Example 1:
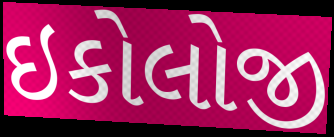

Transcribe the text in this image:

ઇકોલોજી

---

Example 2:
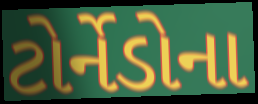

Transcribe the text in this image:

ટોર્નેડોના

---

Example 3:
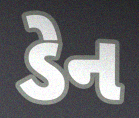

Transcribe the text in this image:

ડેન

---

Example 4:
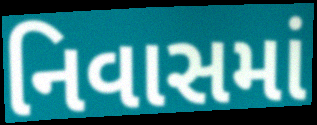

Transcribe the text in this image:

નિવાસમાં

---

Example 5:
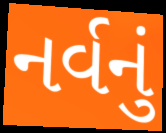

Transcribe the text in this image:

નર્વનું